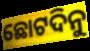
ଛୋଟଦିନୁ